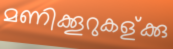
മണിക്കൂറുകള്ക്കു